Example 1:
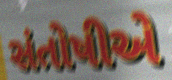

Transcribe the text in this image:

સંતોષીએ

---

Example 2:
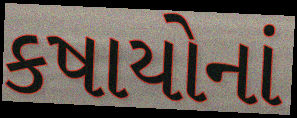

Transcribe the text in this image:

કષાયોનાં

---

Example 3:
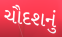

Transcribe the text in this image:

ચૌદશનું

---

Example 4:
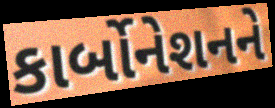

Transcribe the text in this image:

કાર્બોનેશનને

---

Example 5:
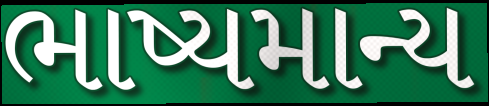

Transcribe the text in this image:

ભાષ્યમાન્ય